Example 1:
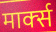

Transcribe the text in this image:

मार्क्‍स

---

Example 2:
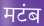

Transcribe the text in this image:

मटंब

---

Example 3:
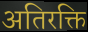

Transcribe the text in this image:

अतिरक्ति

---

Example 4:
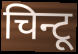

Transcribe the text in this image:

चिन्टू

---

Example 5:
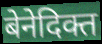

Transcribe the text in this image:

बेनेदिक्त